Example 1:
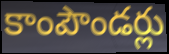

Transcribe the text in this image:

కాంపౌండర్లు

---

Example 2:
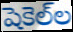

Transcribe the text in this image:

షెకెల్‌ల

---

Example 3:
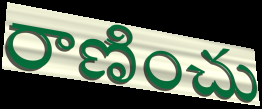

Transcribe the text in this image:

రాణించు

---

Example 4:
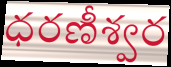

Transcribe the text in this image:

ధరణీశ్వర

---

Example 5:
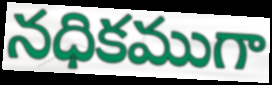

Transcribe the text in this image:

నధికముగా